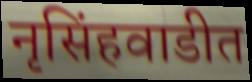
नृसिंहवाडीत